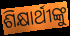
ଶିକ୍ଷାର୍ଥୀଙ୍କୁ